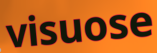
visuose